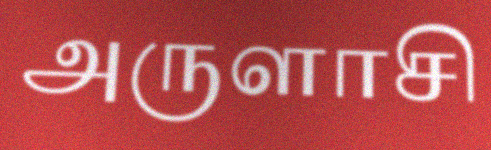
அருளாசி